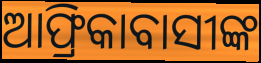
ଆଫ୍ରିକାବାସୀଙ୍କ